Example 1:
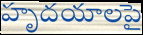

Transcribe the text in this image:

హృదయాలపై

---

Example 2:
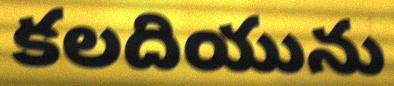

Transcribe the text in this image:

కలదియును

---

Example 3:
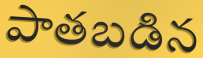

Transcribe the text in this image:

పాతబడిన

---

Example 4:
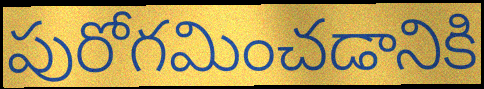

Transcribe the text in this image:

పురోగమించడానికి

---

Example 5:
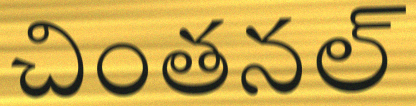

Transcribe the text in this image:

చింతనల్